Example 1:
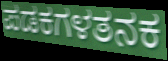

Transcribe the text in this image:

ಪಡಕಗಳತನಕ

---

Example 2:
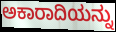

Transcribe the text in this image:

ಅಕಾರಾದಿಯನ್ನು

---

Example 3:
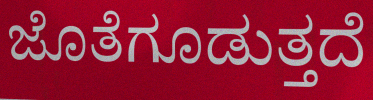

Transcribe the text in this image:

ಜೊತೆಗೂಡುತ್ತದೆ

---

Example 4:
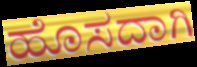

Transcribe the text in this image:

ಹೊಸದಾಗಿ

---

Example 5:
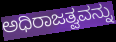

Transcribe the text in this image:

ಅಧಿರಾಜತ್ವವನ್ನು